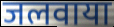
जलवाया